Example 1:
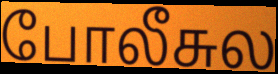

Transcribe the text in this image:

போலீசுல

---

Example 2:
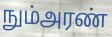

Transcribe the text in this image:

நும்அரண்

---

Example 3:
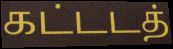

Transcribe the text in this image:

கட்டடத்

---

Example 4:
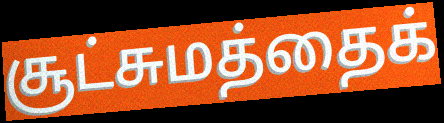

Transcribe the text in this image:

சூட்சுமத்தைக்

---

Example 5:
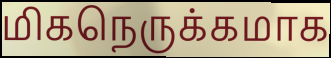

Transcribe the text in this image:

மிகநெருக்கமாக